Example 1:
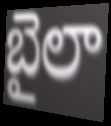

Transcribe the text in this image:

బైలా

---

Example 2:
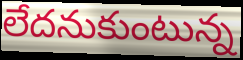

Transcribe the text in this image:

లేదనుకుంటున్న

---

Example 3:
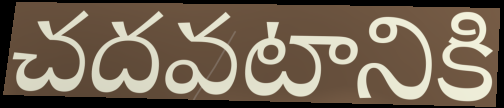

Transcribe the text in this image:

చదవటానికి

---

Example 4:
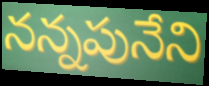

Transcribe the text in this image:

నన్నపునేని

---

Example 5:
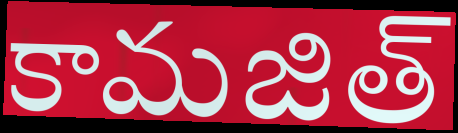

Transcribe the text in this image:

కామజిత్